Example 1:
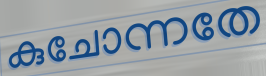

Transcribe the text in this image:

കുചോന്നതേ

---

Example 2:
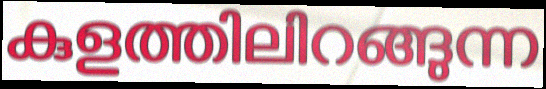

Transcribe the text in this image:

കുളത്തിലിറങ്ങുന്ന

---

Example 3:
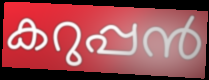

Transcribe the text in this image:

കറുപ്പൻ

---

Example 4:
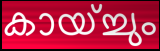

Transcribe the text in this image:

കായ്ച്ചും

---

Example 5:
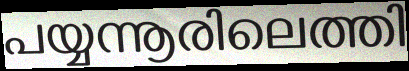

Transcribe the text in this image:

പയ്യന്നൂരിലെത്തി